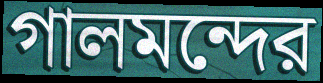
গালমন্দের